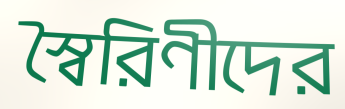
স্বৈরিণীদের